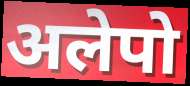
अलेपो